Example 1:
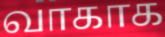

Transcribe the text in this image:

வாகாக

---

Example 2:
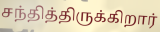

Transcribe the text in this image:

சந்தித்திருக்கிறார்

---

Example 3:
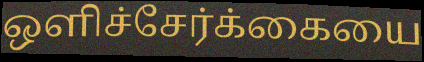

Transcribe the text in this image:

ஒளிச்சேர்க்கையை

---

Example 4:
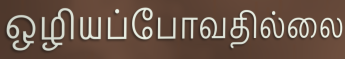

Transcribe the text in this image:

ஒழியப்போவதில்லை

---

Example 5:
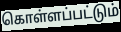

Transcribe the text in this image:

கொள்ளப்பட்டும்